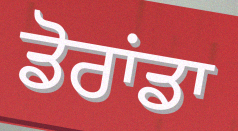
ਡੋਰਾਂਡਾ